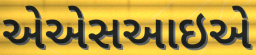
એએસઆઇએ